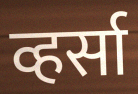
व्हर्सा